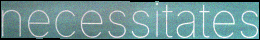
necessitates